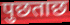
पुछताछ